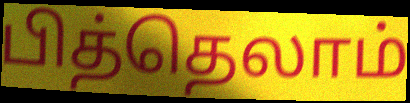
பித்தெலாம்